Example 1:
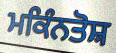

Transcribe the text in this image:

ਮਕਿੰਨਤੋਸ਼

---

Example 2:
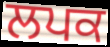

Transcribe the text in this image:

ਲਪਕ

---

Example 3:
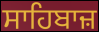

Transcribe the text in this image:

ਸਾਹਿਬਾਜ਼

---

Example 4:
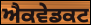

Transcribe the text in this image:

ਐਕਵੇਡਕਟ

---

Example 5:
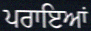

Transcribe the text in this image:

ਪਰਾਇਆਂ